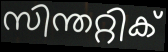
സിന്തറ്റിക്